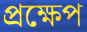
প্ৰক্ষেপ